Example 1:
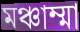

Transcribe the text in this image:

মঞ্চাম্মা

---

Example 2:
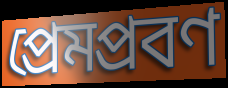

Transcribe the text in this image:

প্রেমপ্রবণ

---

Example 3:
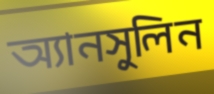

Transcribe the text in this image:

অ্যানসুলিন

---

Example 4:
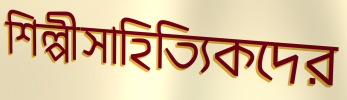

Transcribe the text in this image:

শিল্পীসাহিত্যিকদের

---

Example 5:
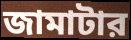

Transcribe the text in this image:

জামাটার